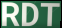
RDT